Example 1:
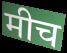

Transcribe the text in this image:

मीच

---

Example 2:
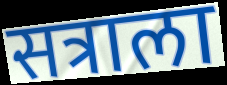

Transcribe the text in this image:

सत्राला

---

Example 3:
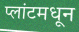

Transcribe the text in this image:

प्लांटमधून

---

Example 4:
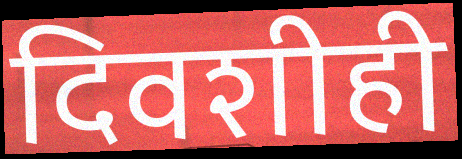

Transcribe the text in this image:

दिवशीही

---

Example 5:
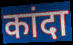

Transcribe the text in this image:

कांदा